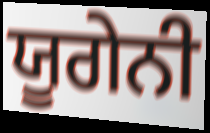
ਯੂਗੇਨੀ